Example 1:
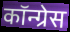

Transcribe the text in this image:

कॉन्ग्रेस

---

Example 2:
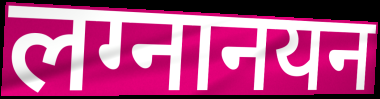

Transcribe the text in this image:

लग्नानयन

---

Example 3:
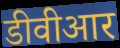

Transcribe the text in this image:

डीवीआर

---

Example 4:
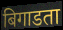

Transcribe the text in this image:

बिगाडता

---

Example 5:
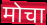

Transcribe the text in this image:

मोचा